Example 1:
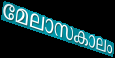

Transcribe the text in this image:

മേലാസകാലം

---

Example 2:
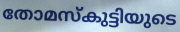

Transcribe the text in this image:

തോമസ്കുട്ടിയുടെ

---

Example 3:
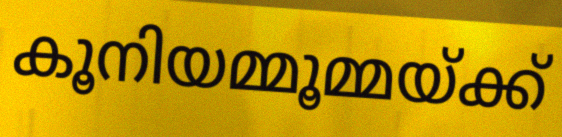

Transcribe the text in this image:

കൂനിയമ്മൂമ്മയ്ക്ക്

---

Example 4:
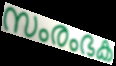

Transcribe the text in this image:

സംരംഭക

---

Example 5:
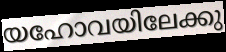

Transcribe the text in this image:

യഹോവയിലേക്കു